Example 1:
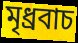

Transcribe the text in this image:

মৃধ্রবাচ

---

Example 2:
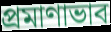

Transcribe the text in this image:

প্রমাণাভাব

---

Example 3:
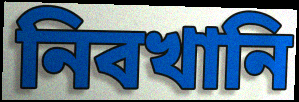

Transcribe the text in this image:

নিবখানি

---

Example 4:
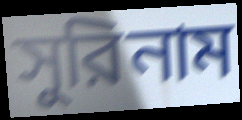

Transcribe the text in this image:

সুরিনাম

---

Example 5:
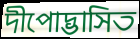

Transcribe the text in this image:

দীপোদ্ভাসিত